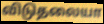
விடுதலையா